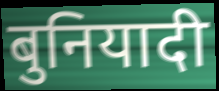
बुनियादी